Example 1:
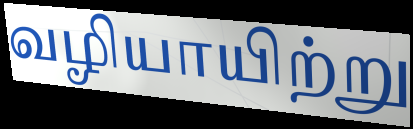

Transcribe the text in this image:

வழியாயிற்று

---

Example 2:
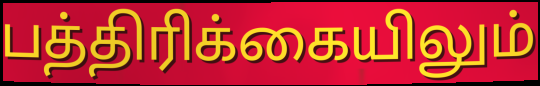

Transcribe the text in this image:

பத்திரிக்கையிலும்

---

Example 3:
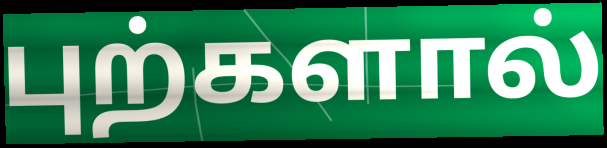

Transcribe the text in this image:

புற்களால்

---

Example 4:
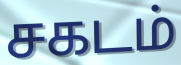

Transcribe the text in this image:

சகடம்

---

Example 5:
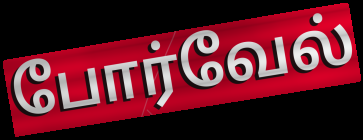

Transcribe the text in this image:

போர்வேல்